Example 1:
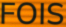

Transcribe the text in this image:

FOIS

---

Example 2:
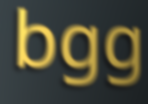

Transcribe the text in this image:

bgg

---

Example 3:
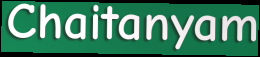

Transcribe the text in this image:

Chaitanyam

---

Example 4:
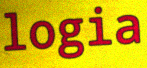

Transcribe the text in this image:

logia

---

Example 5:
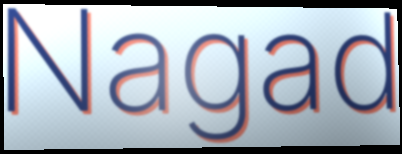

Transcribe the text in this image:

Nagad